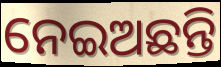
ନେଇଅଛନ୍ତି